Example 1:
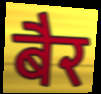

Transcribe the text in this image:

बैर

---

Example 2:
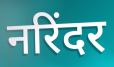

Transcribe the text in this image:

नरिंदर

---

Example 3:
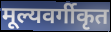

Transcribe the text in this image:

मूल्यवर्गीकृत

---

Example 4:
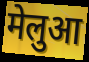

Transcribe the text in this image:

मेलुआ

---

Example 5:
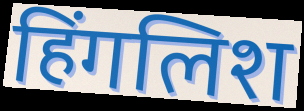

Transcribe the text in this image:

हिंगलिश